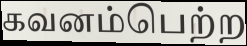
கவனம்பெற்ற